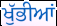
ਖੁੱਭੀਆਂ